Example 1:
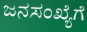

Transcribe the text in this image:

ಜನಸಂಖ್ಯೆಗೆ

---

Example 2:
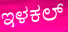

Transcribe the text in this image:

ಇಳಕಲ್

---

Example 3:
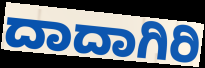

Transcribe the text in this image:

ದಾದಾಗಿರಿ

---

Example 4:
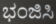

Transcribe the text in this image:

ಭಂಜಿಸಿ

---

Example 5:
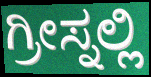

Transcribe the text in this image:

ಗ್ರೀಸ್ನಲ್ಲಿ